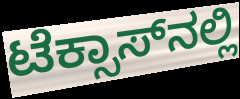
ಟೆಕ್ಸಾಸ್‌ನಲ್ಲಿ